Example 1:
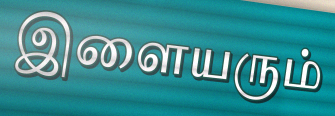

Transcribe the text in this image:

இளையரும்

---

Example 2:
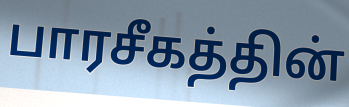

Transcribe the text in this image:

பாரசீகத்தின்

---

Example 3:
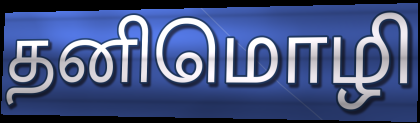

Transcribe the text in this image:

தனிமொழி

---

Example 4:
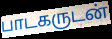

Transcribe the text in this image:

பாடகருடன்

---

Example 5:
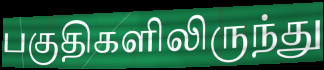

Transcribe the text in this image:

பகுதிகளிலிருந்து